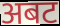
अबट